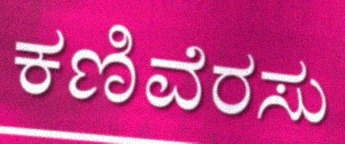
ಕಣಿವೆರಸು